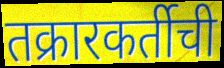
तक्रारकर्तीची